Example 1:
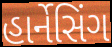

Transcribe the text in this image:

હાર્નેસિંગ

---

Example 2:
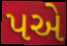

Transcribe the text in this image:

પએ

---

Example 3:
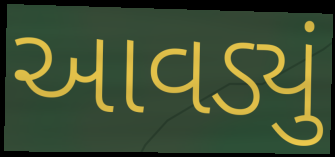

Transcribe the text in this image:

આવડ્યું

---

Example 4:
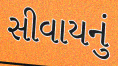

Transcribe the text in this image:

સીવાયનું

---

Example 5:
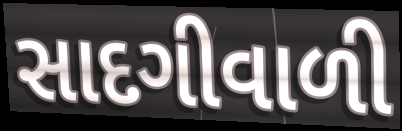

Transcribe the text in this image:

સાદગીવાળી